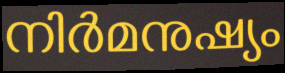
നിർമനുഷ്യം